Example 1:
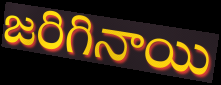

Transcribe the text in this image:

జరిగినాయి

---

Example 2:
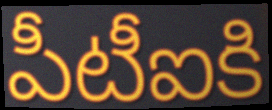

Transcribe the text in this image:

పీటీఐకి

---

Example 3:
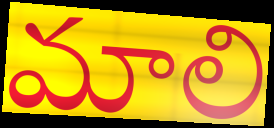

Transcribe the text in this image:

మాలి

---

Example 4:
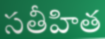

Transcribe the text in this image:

సతీహిత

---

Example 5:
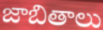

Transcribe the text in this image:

జాబితాలు